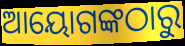
ଆୟୋଗଙ୍କଠାରୁ